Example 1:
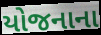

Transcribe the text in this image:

યોજનાના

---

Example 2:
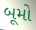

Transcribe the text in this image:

બૂમો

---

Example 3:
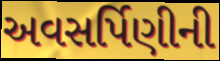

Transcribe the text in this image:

અવસર્પિણીની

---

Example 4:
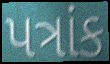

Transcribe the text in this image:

પત્રાંક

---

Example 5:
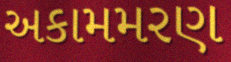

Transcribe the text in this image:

અકામમરણ